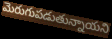
మెరుగుపడుతున్నాయని